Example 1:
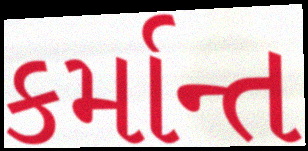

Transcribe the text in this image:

કર્માન્ત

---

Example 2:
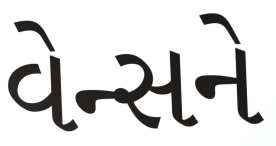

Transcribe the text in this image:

વેન્સને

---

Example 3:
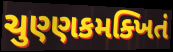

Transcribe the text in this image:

ચુણ્ણકમક્ખિતં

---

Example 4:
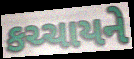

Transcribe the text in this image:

કચ્ચાયને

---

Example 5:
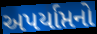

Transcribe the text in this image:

અપર્યાપ્તનો